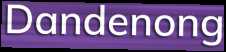
Dandenong